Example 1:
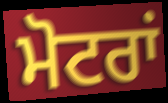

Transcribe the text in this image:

ਮੋਟਰਾਂ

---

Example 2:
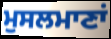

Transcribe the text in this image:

ਮੁਸਲਮਾਣਾਂ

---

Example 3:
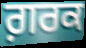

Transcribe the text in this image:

ਗ਼ਰਕ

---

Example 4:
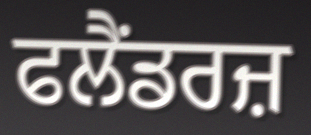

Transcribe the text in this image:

ਫਲੈਂਡਰਜ਼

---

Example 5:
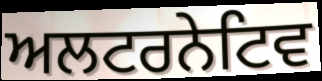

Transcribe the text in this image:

ਅਲਟਰਨੇਟਿਵ